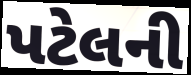
પટેલની